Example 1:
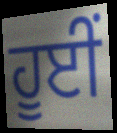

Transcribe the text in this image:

ਹੂਈਂ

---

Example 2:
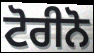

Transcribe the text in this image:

ਟੋਰੀਨੋ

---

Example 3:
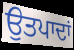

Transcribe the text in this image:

ਉਤਪਾਦਾਂ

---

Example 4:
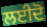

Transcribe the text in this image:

ਲਈਦੋ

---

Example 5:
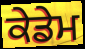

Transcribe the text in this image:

ਕੇਡੇਮ